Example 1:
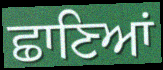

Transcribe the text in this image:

ਛਾਣਿਆਂ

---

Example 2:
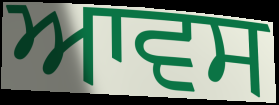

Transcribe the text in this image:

ਆਵਸ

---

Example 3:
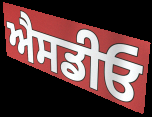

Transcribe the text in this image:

ਐਸਡੀਓ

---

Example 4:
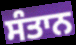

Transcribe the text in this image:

ਸੰਤਾਨ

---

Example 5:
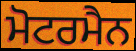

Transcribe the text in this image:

ਮੋਟਰਮੈਨ